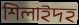
শিলাইদহ